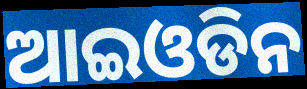
ଆଇଓଡିନ